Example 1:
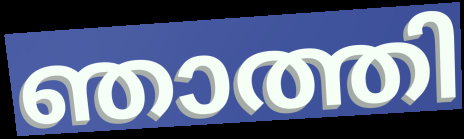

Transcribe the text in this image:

ഞാത്തി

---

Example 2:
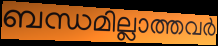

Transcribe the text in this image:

ബന്ധമില്ലാത്തവർ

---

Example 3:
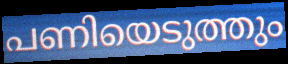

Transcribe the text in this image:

പണിയെടുത്തും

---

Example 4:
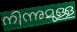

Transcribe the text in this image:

നിന്നുമുള്ള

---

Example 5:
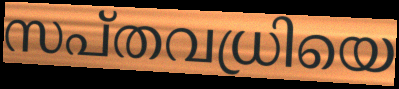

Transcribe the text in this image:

സപ്തവധ്രിയെ